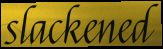
slackened